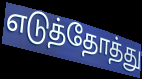
எடுத்தோத்து